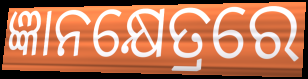
ଜ୍ଞାନକ୍ଷେତ୍ରରେ